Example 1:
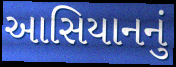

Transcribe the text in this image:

આસિયાનનું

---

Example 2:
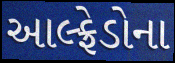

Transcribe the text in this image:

આલ્ફ્રેડોના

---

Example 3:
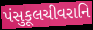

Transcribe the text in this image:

પંસુકૂલચીવરાનિ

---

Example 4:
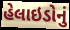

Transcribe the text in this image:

હેલાઇડોનું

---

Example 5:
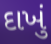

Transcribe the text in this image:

દાખું